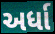
અર્ધા